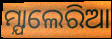
ମ୍ଯାଲେରିଆ